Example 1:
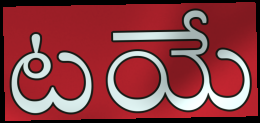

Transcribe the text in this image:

టయే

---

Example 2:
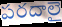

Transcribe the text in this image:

పరదాలై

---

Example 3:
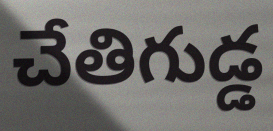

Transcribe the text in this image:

చేతిగుడ్డ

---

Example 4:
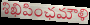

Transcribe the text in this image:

శిఖిపింఛమౌళి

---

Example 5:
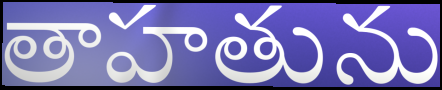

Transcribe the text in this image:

తాహతును